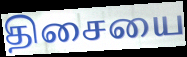
திசையை